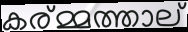
കര്മ്മത്താല്